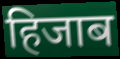
हिजाब